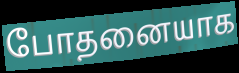
போதனையாக